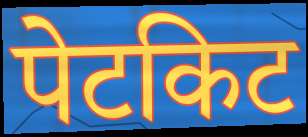
पेटकिट